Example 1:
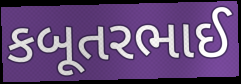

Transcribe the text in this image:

કબૂતરભાઈ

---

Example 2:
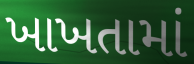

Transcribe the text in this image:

ખાખતામાં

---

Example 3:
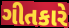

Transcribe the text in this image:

ગીતકારે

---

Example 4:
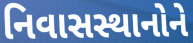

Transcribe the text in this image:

નિવાસસ્થાનોને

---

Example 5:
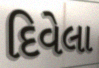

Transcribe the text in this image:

દિવેલા